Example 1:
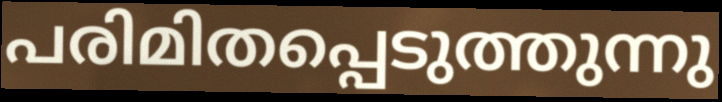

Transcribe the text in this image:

പരിമിതപ്പെടുത്തുന്നു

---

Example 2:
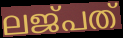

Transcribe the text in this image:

ലജ്പത്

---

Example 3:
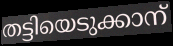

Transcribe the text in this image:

തട്ടിയെടുക്കാന്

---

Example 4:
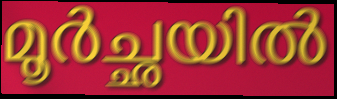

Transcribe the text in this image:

മൂർച്ഛയിൽ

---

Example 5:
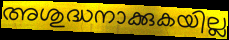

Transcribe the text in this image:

അശുദ്ധനാക്കുകയില്ല